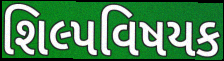
શિલ્પવિષયક